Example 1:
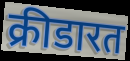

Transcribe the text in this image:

क्रीडारत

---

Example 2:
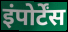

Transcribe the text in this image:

इंपोर्टेंस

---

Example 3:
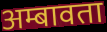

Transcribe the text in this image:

अम्बावता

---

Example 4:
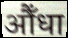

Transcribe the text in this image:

औँधा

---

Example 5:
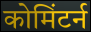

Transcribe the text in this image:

कोमिंटर्न